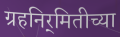
ग्रहनिर्मितीच्या